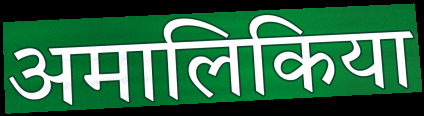
अमालिकिया